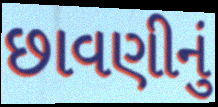
છાવણીનું